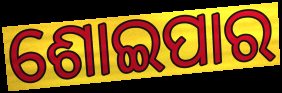
ଶୋଇପାର